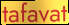
tafavat